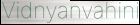
Vidnyanvahini